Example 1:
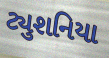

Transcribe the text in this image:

ટ્યુશનિયા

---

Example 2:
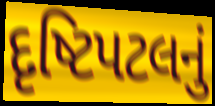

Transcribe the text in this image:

દૃષ્ટિપટલનું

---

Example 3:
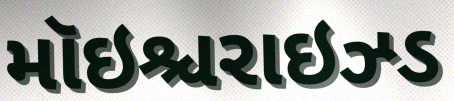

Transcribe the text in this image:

મૉઇશ્ચરાઇઝ્ડ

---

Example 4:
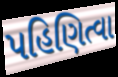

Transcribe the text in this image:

પહિણિત્વા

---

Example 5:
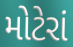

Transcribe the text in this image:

મોટેરાં